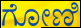
ಗೋಣಿ